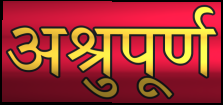
अश्रुपूर्ण